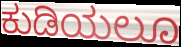
ಕುಡಿಯಲೂ